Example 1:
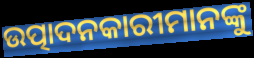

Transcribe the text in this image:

ଉତ୍ପାଦନକାରୀମାନଙ୍କୁ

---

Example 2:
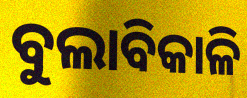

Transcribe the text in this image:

ବୁଲାବିକାଳି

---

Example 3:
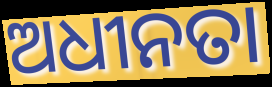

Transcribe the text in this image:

ଅଧୀନତା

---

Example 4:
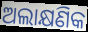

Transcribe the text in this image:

ଅଲାକ୍ଷଣିକ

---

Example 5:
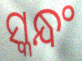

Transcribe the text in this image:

ସ୍କନ୍ଧଂ